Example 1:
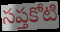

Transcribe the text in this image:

సప్తకోటి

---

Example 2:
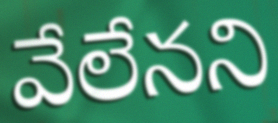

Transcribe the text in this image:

వేలేనని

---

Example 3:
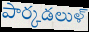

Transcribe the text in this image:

పార్కడలుళ్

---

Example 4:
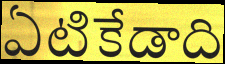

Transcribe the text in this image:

ఏటికేడాది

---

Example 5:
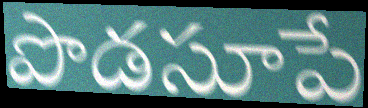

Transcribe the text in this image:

పొడసూపే